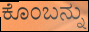
ಕೊಂಬನ್ನು